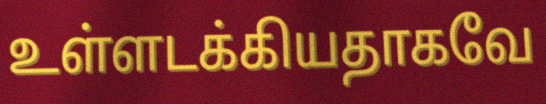
உள்ளடக்கியதாகவே